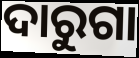
ଦାରୁଗା